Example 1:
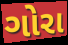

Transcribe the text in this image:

ગોરા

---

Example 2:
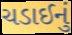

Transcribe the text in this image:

ચડાઈનું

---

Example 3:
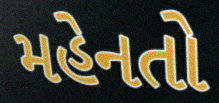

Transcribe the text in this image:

મહેનતો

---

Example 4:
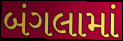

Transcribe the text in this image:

બંગલામાં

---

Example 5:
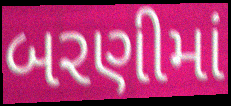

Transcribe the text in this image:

બરણીમાં